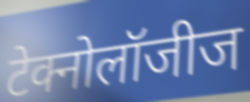
टेक्नोलॉजीज